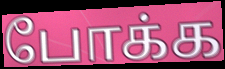
போக்க